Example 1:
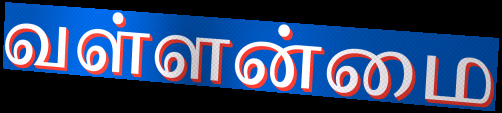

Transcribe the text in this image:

வள்ளன்மை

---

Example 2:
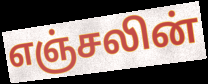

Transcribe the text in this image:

எஞ்சலின்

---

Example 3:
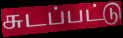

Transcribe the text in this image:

சுடப்பட்டு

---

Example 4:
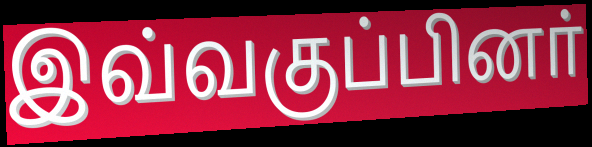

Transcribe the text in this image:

இவ்வகுப்பினர்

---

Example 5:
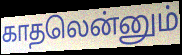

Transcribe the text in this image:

காதலென்னும்